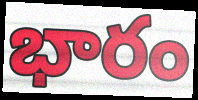
భారం